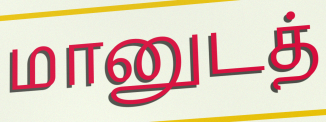
மானுடத்